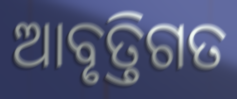
ଆବୃତ୍ତିଗତ